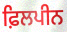
ਫ਼ਿਲਪੀਨ